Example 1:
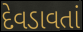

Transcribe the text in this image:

દેવડાવતાં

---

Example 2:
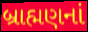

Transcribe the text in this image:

બ્રાહ્મણનાં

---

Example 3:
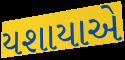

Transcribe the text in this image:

યશાયાએ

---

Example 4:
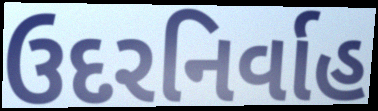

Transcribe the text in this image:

ઉદરનિર્વાહ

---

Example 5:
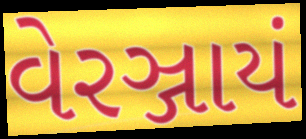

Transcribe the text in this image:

વેરઞ્જાયં